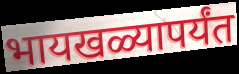
भायखळ्यापर्यंत